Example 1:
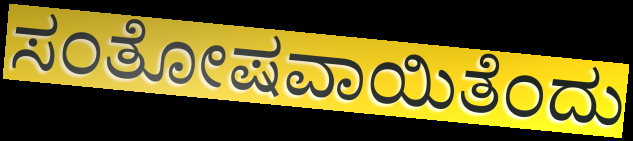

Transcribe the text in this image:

ಸಂತೋಷವಾಯಿತೆಂದು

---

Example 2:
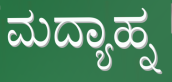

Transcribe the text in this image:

ಮದ್ಯಾಹ್ನ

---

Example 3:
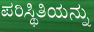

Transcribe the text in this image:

ಪರಿಸ್ಥಿತಿಯನ್ನು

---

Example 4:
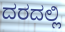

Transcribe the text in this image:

ದರದಲ್ಲಿ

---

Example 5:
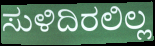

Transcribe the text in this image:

ಸುಳಿದಿರಲಿಲ್ಲ